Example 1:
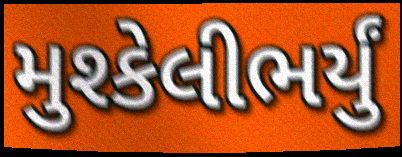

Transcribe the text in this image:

મુશ્કેલીભર્યું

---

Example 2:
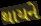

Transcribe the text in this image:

થાયને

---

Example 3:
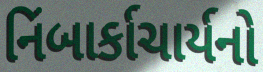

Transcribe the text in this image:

નિંબાર્કાચાર્યનો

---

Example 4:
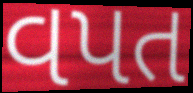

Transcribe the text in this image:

વપત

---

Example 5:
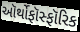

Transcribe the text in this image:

ઑર્થોફૉસ્ફૉરિક